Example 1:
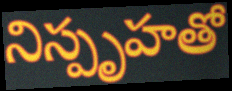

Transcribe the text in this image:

నిస్పృహతో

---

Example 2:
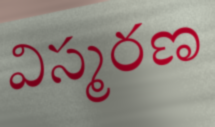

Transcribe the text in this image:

విస్మరణ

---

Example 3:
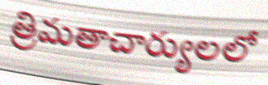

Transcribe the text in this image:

త్రిమతాచార్యులలో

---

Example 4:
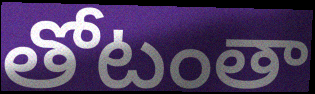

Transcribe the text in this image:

తోటంతా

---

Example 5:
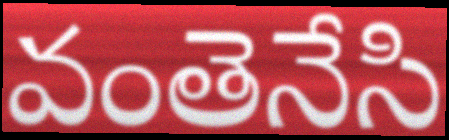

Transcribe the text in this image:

వంతెనేసి